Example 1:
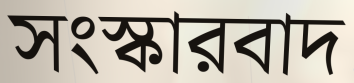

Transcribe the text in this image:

সংস্কারবাদ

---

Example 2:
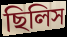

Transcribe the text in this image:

ছিলিস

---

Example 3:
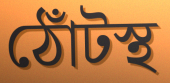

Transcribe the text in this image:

ঠোঁটস্থ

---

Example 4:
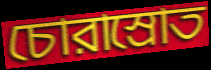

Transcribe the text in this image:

চোরাস্রোত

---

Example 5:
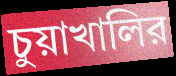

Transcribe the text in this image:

চুয়াখালির